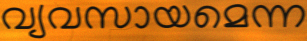
വ്യവസായമെന്ന